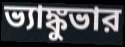
ভ্যাঙ্কুভার